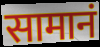
सामानं